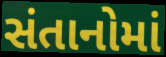
સંતાનોમાં